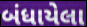
બંધાયેલા